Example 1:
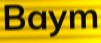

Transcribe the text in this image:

Baym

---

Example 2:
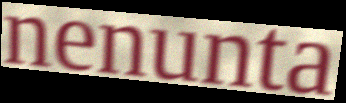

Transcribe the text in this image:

nenunta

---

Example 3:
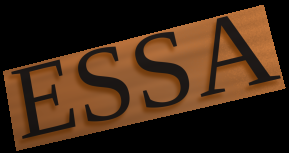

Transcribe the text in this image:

ESSA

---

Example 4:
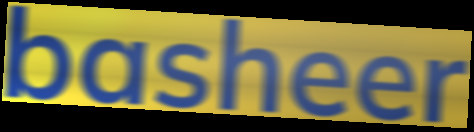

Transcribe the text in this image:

basheer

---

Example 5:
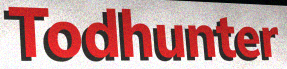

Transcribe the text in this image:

Todhunter